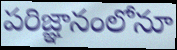
పరిజ్ఞానంలోనూ